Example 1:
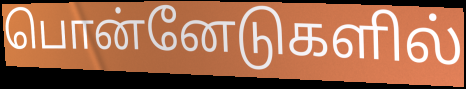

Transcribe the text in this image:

பொன்னேடுகளில்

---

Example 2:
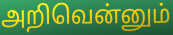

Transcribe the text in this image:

அறிவென்னும்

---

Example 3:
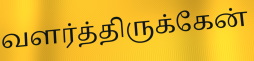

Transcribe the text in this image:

வளர்த்திருக்கேன்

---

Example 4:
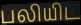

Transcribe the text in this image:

பலியிட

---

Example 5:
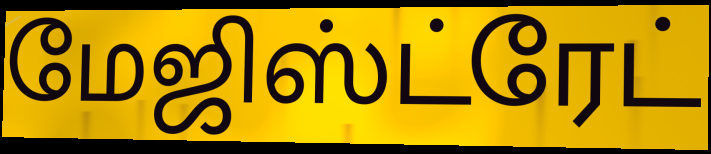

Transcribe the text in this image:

மேஜிஸ்ட்ரேட்